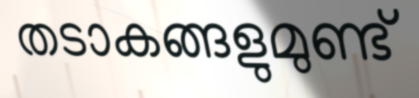
തടാകങ്ങളുമുണ്ട്